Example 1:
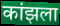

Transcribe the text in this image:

कांझला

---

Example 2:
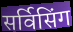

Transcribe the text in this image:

सर्विसिंग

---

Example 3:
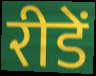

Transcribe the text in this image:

रीडें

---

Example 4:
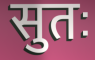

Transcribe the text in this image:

सुतः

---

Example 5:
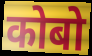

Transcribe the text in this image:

कोबो